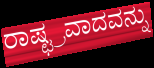
ರಾಷ್ಟ್ರವಾದವನ್ನು